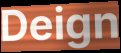
Deign